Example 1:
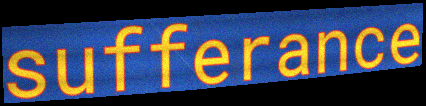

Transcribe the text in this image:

sufferance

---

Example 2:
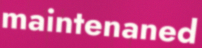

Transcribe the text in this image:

maintenaned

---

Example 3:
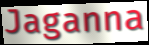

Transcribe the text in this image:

Jaganna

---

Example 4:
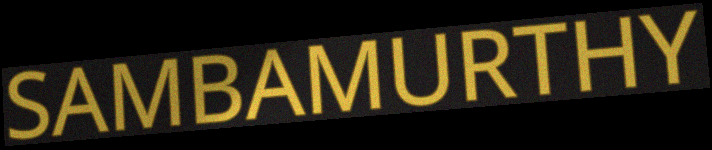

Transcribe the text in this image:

SAMBAMURTHY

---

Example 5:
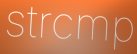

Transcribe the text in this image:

strcmp